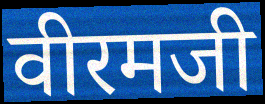
वीरमजी